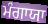
ਮੰਗਾਯਾ